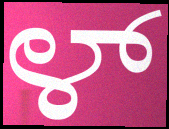
ಳ್